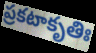
ప్రకటాకృతిః